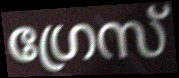
ഗ്രേസ്